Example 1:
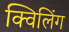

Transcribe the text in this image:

क्विलिंग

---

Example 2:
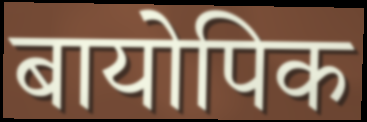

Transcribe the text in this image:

बायोपिक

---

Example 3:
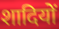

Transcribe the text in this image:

शादियों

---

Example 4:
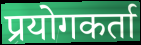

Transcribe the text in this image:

प्रयोगकर्ता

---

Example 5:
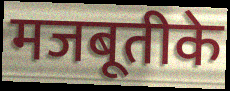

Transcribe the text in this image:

मजबूतीके